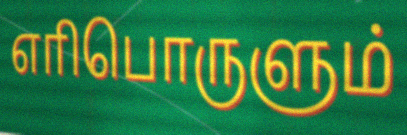
எரிபொருளும்